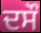
ਦਸੌ